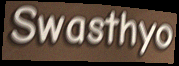
Swasthyo